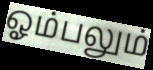
ஓம்பலும்